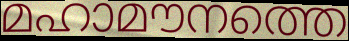
മഹാമൗനത്തെ